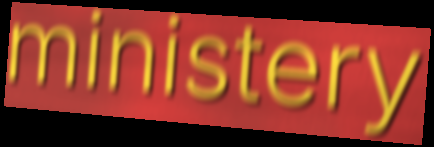
ministery